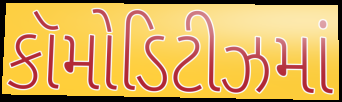
કૉમોડિટીઝમાં